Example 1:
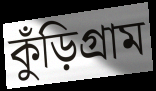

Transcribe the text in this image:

কুঁড়িগ্রাম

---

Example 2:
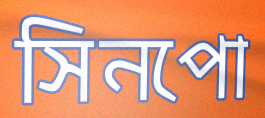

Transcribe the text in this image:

সিনপো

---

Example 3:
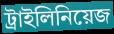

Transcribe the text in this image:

ট্রাইলিনিয়েজ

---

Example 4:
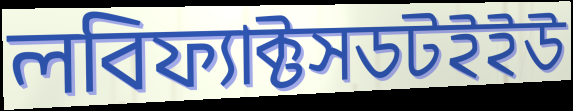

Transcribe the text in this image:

লবিফ্যাক্টসডটইইউ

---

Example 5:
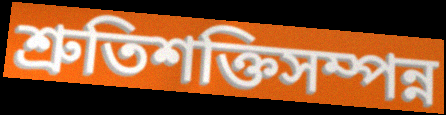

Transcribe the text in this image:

শ্রুতিশক্তিসম্পন্ন